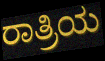
ರಾತ್ರಿಯ